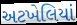
અટખેલિયાં